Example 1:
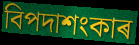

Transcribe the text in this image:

বিপদাশংকাৰ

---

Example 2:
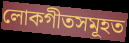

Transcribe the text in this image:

লোকগীতসমূহত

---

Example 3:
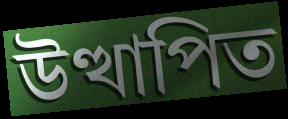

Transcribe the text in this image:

উত্থাপিত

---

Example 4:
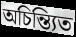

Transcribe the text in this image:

অচিন্ত্যিত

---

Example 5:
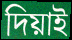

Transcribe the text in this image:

দিয়াই